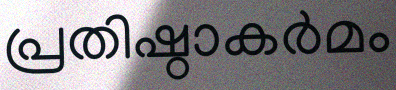
പ്രതിഷ്ഠാകർമം